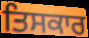
ਤਿਸਕਾਰ